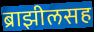
ब्राझीलसह